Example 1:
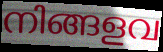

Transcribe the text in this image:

നിങ്ങളവ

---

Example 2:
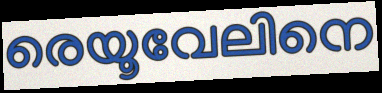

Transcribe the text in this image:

രെയൂവേലിനെ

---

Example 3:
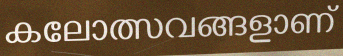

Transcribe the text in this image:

കലോത്സവങ്ങളാണ്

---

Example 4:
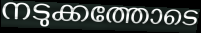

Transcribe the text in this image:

നടുക്കത്തോടെ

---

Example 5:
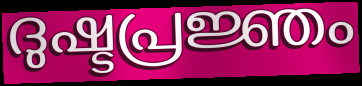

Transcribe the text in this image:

ദുഷ്ടപ്രജ്ഞം